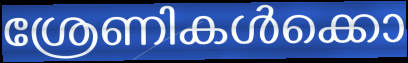
ശ്രേണികൾക്കൊ